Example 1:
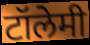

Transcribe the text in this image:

टॉलेमी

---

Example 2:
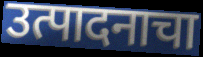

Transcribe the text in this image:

उत्पादनाचा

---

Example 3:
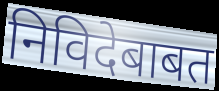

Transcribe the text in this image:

निविदेबाबत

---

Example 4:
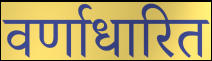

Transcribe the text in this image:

वर्णाधारित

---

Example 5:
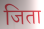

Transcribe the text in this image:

जिता